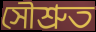
সৌশ্ৰুত